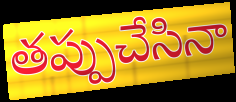
తప్పుచేసినా